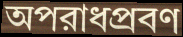
অপরাধপ্রবণ